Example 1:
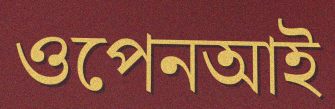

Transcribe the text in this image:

ওপেনআই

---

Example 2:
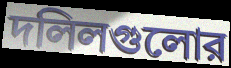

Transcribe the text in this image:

দলিলগুলোর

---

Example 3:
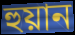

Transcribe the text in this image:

হুয়ান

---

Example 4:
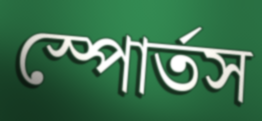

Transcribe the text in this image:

স্পোর্তস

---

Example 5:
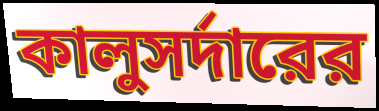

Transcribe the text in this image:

কালুসর্দারের